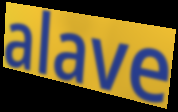
alave